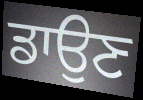
ਡਾਉਣ